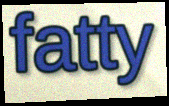
fatty